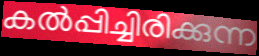
കൽപ്പിച്ചിരിക്കുന്ന